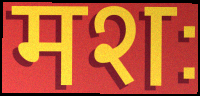
मशः